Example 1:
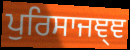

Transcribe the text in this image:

ਪੁਰਿਸਾਜਞ੍ਞ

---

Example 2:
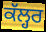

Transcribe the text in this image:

ਕੱਲ੍ਹਰ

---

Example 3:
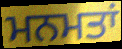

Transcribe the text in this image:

ਮਨਮਤਾਂ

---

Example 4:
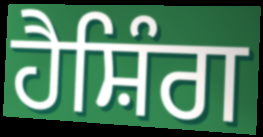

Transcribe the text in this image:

ਹੈਸ਼ਿੰਗ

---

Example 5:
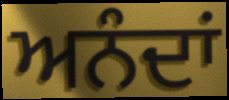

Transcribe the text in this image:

ਅਨੰਦਾਂ